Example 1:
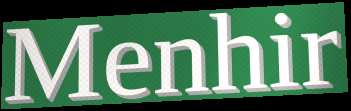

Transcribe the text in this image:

Menhir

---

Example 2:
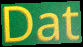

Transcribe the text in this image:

Dat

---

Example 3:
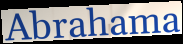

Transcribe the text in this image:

Abrahama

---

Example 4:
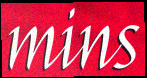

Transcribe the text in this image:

mins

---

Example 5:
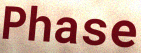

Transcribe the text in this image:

Phase